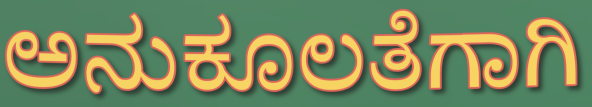
ಅನುಕೂಲತೆಗಾಗಿ